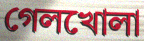
গেলখোলা